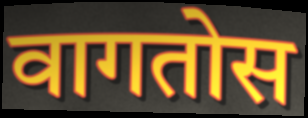
वागतोस